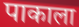
पाकाला